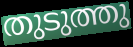
തുടുത്തു